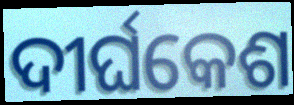
ଦୀର୍ଘକେଶ